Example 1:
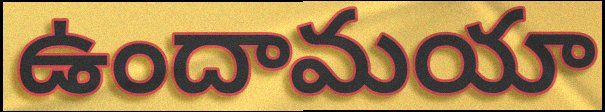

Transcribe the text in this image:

ఉందామయా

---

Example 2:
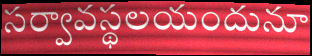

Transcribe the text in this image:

సర్వావస్థలయందునూ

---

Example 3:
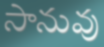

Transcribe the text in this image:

సానువు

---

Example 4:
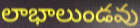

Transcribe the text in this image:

లాభాలుండవు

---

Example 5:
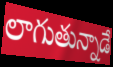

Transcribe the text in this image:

లాగుతున్నాడే